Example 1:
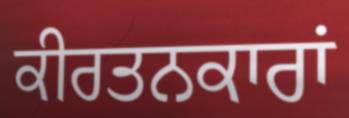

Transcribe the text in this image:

ਕੀਰਤਨਕਾਰਾਂ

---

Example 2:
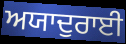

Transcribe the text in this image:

ਅਯਾਦੁਰਾਈ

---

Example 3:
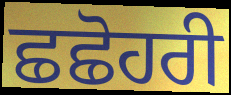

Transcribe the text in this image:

ਛਛੋਹਰੀ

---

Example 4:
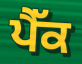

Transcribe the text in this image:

ਪੈੱਕ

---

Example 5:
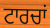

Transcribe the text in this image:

ਟਾਰਚਾਂ